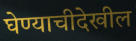
घेण्याचीदेखील